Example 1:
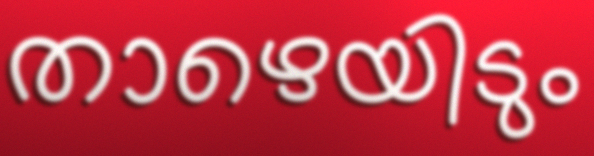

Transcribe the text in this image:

താഴെയിടും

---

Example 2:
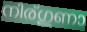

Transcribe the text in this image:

നിര്ഗുണാ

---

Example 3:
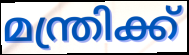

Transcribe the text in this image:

മന്ത്രിക്ക്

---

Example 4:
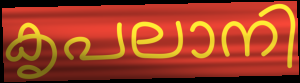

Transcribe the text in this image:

കൃപലാനി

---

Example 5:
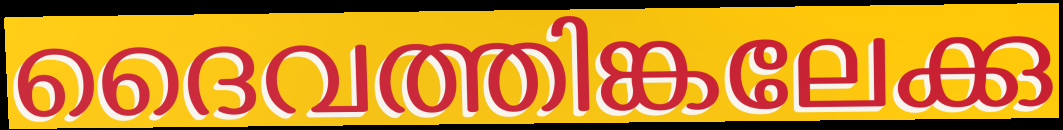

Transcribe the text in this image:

ദൈവത്തിങ്കലേക്കു